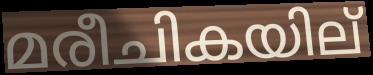
മരീചികയില്